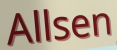
Allsen